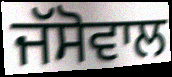
ਜੱਸੋਵਾਲ